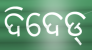
ଦିଦେଡ୍